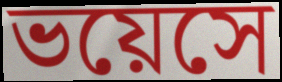
ভয়েসে